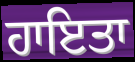
ਹਾਇਤਾ